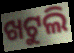
ଖଟୁଲି